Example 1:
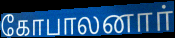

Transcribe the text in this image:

கோபாலனார்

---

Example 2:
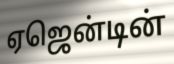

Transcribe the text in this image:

ஏஜென்டின்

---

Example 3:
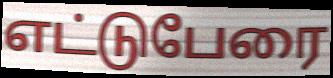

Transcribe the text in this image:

எட்டுபேரை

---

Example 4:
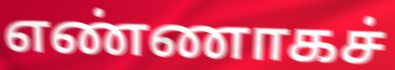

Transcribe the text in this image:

எண்ணாகச்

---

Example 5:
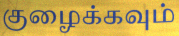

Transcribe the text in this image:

குழைக்கவும்